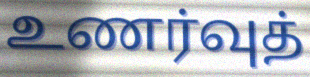
உணர்வுத்